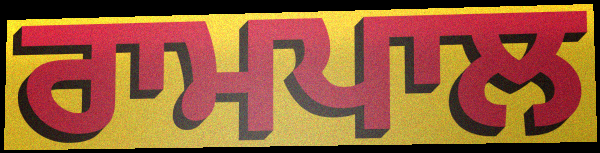
ਰਾਮਪਾਲ